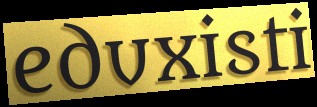
eduxisti